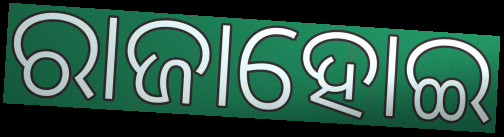
ରାଜାହୋଇ